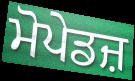
ਮੋਪੇਡਜ਼